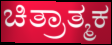
ಚಿತ್ರಾತ್ಮಕ